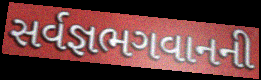
સર્વજ્ઞભગવાનની